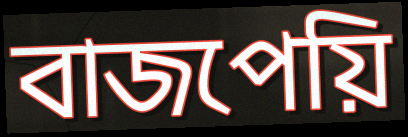
বাজপেয়ি